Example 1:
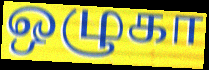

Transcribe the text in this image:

ஒழுகா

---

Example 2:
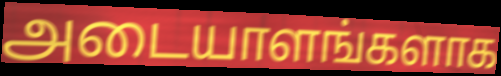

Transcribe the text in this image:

அடையாளங்களாக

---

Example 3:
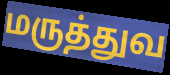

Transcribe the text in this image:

மருத்துவ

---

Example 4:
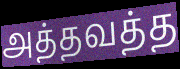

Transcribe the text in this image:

அத்தவத்த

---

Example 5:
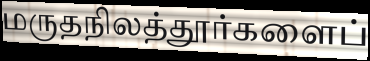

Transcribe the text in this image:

மருதநிலத்தூர்களைப்